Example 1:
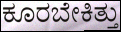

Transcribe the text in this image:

ಕೂರಬೇಕಿತ್ತು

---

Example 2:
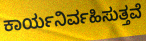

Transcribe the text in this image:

ಕಾರ್ಯನಿರ್ವಹಿಸುತ್ತವೆ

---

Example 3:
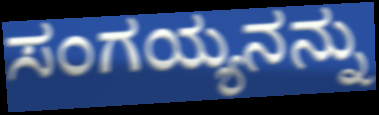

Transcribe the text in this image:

ಸಂಗಯ್ಯನನ್ನು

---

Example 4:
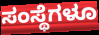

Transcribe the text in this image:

ಸಂಸ್ಥೆಗಳೂ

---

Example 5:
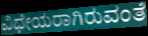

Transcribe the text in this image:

ವಿಧೇಯರಾಗಿರುವಂತೆ